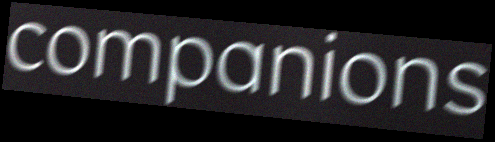
companions